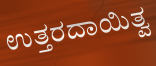
ಉತ್ತರದಾಯಿತ್ವ